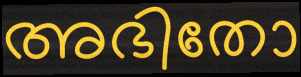
അഭിതോ